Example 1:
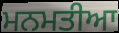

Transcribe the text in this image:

ਮਨਮਤੀਆ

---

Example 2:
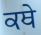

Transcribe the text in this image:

ਕਥੇ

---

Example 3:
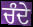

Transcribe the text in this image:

ਚੰਦੇ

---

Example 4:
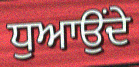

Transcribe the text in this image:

ਧੁਆਉਂਦੇ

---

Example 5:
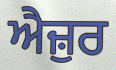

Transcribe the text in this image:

ਐਜ਼ੁਰ